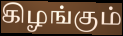
கிழங்கும்